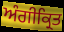
ਅੰਗੀਕ੍ਰਿਤ